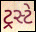
ટ્રસ્ટે